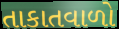
તાકાતવાળો